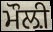
ਮੌਲ਼ੀ